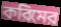
করিমের